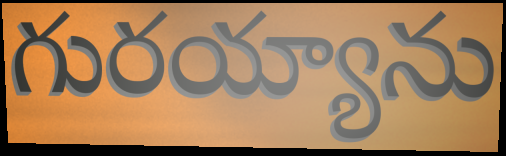
గురయ్యాను